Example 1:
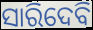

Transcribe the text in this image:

ସାରିଦେବି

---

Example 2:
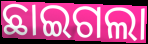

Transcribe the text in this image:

ଛାଇଗଲା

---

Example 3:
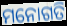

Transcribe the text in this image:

ମନୋଗତି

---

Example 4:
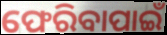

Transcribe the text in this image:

ଫେରିବାପାଇଁ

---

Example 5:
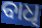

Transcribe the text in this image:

ବାଧି